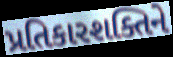
પ્રતિકારશક્તિને